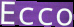
Ecco